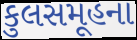
કુલસમૂહના